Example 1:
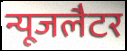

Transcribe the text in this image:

न्यूजलैटर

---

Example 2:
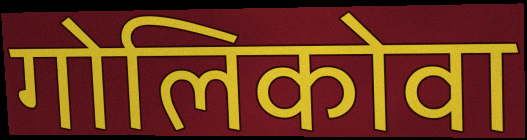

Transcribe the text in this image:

गोलिकोवा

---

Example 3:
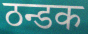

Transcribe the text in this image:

ठन्डक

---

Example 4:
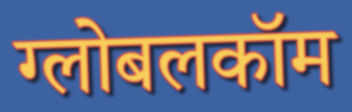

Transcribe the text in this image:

ग्लोबलकॉम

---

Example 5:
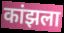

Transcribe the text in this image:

कांझला